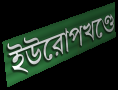
ইউরোপখণ্ডে